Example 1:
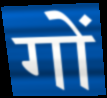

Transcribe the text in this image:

गों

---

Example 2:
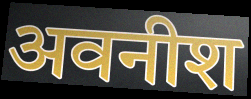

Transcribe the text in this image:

अवनीश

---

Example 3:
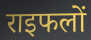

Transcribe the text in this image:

राइफलों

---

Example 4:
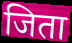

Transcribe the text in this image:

जिता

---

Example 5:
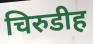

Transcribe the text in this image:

चिरुडीह